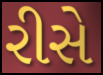
રીસે